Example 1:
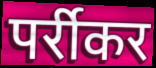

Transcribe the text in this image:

पर्रीकर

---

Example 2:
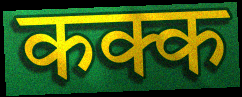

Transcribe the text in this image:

कक्क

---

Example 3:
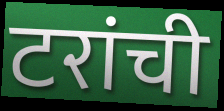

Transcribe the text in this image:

टरांची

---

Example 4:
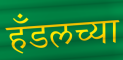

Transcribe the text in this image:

हँडलच्या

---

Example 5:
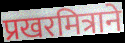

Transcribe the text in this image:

प्रखरमित्राने